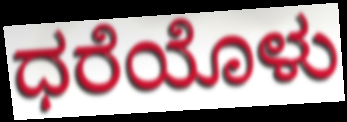
ಧರೆಯೊಳು